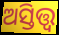
ଅସ୍ତିତ୍ତ୍ବ